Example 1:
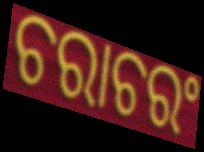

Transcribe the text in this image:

ଚରାଚରଂ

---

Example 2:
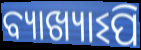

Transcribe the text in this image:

ବ୍ୟାଖ୍ୟାଽପି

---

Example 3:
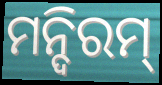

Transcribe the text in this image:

ମନ୍ଦିରମ୍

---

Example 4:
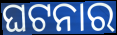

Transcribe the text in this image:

ଘଟନାର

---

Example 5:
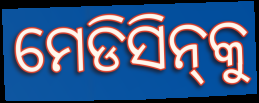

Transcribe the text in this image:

ମେଡିସିନ୍‌କୁ